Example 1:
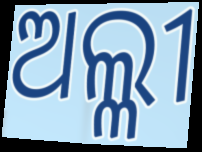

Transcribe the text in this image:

ଅଲ୍ଳୀ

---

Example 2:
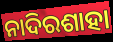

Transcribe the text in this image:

ନାଦିରଶାହା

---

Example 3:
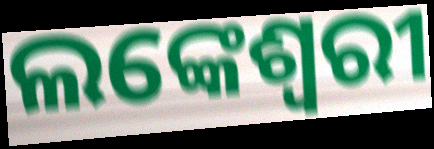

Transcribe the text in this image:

ଲଙ୍କେଶ୍ୱରୀ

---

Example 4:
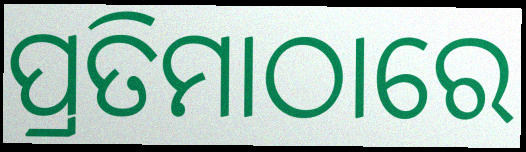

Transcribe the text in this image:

ପ୍ରତିମାଠାରେ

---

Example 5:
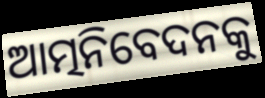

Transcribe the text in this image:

ଆତ୍ମନିବେଦନକୁ